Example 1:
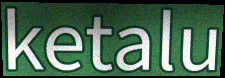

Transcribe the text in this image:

ketalu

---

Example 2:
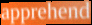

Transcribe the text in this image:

apprehend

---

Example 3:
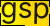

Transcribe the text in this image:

gsp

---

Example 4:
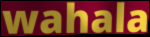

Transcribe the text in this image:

wahala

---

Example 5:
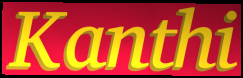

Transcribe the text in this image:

Kanthi